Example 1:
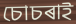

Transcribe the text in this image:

চোচৰাই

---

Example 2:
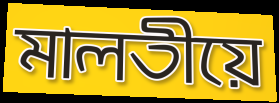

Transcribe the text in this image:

মালতীয়ে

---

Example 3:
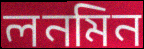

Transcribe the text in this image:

লনমিন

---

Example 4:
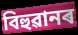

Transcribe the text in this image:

বিহুৱানৰ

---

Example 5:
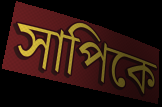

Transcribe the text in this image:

সাপিকে